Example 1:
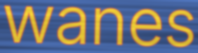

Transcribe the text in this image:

wanes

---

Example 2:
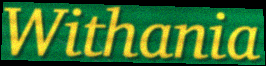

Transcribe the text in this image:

Withania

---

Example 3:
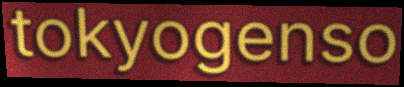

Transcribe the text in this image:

tokyogenso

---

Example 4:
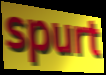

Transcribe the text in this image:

spurt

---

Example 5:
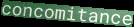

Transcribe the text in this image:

concomitance